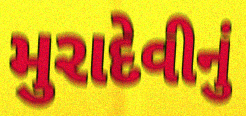
મુરાદેવીનું